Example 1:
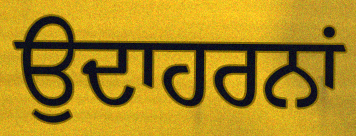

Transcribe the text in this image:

ਉਦਾਹਰਨਾਂ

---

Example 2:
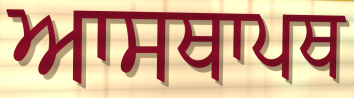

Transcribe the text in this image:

ਆਸਥਾਪਥ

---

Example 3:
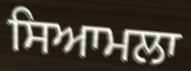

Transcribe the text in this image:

ਸਿਆਮਲਾ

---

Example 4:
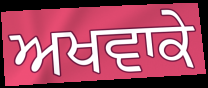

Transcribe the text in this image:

ਅਖਵਾਕੇ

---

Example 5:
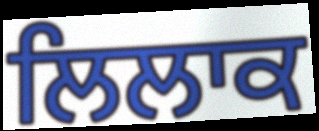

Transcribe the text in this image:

ਲਿਲਾਕ